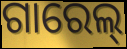
ଗାରେଲ୍